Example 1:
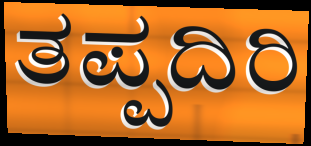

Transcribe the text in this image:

ತಪ್ಪದಿರಿ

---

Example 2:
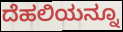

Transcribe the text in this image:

ದೆಹಲಿಯನ್ನೂ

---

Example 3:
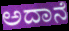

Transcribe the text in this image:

ಅದಾನೆ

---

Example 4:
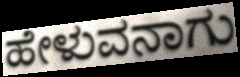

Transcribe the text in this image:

ಹೇಳುವನಾಗು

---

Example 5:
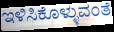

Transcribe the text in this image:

ಇಳಿಸಿಕೊಳ್ಳುವಂತೆ